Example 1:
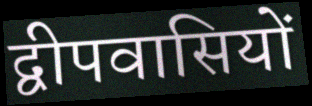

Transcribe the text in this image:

द्वीपवासियों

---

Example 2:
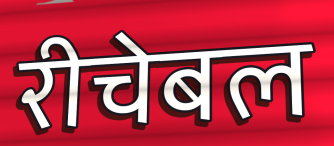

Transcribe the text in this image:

रीचेबल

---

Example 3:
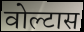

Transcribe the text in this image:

वोल्टास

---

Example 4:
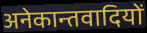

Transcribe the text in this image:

अनेकान्तवादियों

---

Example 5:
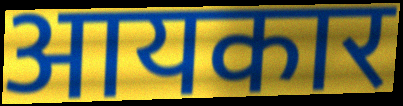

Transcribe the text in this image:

आयकार